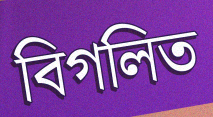
বিগলিত